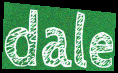
dale